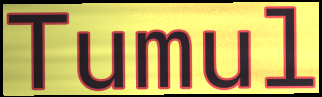
Tumul